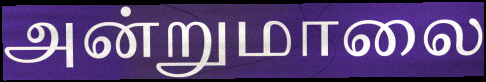
அன்றுமாலை